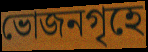
ভোজনগৃহে